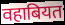
वहाबियत